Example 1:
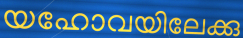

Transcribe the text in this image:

യഹോവയിലേക്കു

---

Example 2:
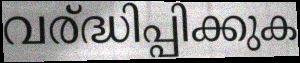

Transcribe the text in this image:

വര്ദ്ധിപ്പിക്കുക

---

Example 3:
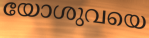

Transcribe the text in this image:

യോശുവയെ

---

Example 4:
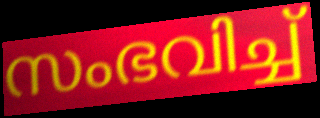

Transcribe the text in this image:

സംഭവിച്ച്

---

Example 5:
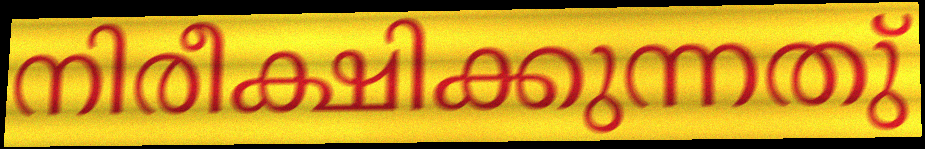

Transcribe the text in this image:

നിരീക്ഷിക്കുന്നതു്